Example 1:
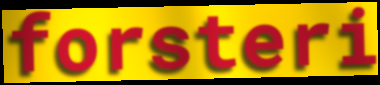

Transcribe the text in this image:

forsteri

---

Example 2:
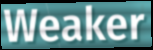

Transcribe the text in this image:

Weaker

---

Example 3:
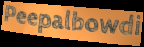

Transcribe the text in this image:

Peepalbowdi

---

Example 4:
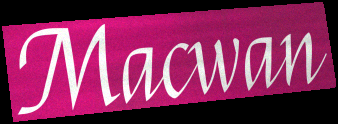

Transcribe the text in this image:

Macwan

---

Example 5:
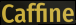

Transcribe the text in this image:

Caffine